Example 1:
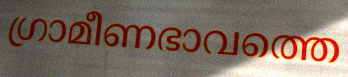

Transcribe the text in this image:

ഗ്രാമീണഭാവത്തെ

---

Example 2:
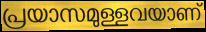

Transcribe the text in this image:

പ്രയാസമുള്ളവയാണ്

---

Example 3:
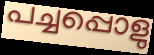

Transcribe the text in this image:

പച്ചപ്പൊളു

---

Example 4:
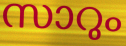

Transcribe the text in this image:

സാറും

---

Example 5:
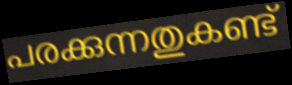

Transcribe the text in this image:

പരക്കുന്നതുകണ്ട്